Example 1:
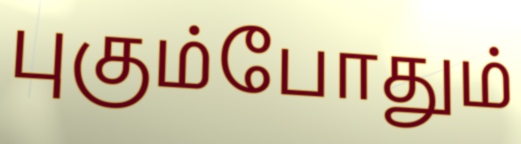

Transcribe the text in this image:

புகும்போதும்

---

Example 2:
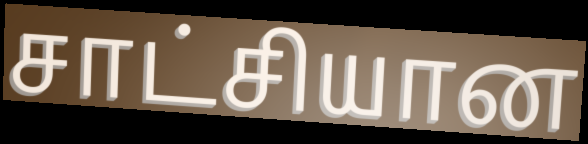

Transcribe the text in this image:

சாட்சியான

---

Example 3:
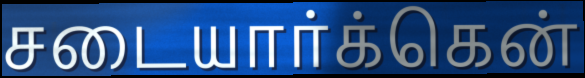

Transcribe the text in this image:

சடையார்க்கென்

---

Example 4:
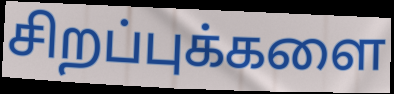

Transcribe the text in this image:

சிறப்புக்களை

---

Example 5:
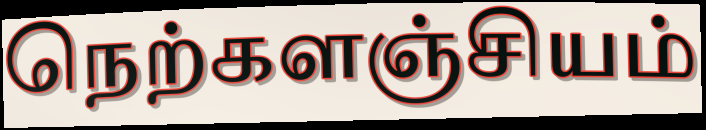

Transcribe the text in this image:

நெற்களஞ்சியம்